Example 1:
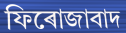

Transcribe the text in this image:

ফিৰোজাবাদ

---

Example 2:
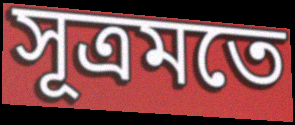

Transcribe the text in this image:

সূত্ৰমতে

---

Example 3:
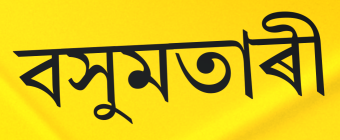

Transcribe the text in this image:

বসুমতাৰী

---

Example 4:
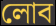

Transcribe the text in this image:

লোব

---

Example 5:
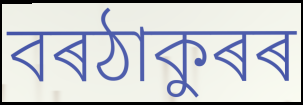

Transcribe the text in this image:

বৰঠাকুৰৰ